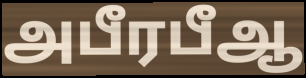
அபீரபீஆ